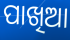
ପାଖିଆ